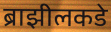
ब्राझीलकडे